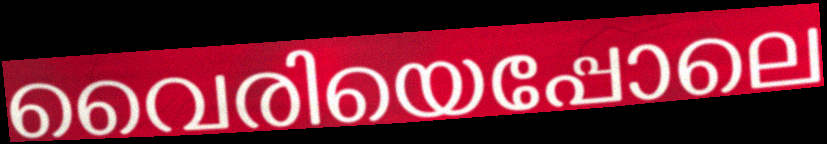
വൈരിയെപ്പോലെ